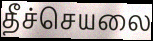
தீச்செயலை